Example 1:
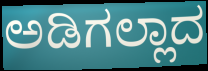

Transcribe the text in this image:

ಅಡಿಗಲ್ಲಾದ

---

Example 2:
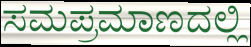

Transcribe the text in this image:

ಸಮಪ್ರಮಾಣದಲ್ಲಿ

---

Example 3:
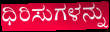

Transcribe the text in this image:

ಧಿರಿಸುಗಳನ್ನು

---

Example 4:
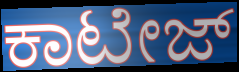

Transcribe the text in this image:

ಕಾಟೇಜ್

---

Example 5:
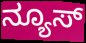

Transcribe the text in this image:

ನ್ಯೂಸ್